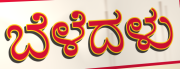
ಬೆಳೆದಳು